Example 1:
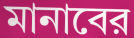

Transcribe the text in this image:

মানাবের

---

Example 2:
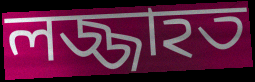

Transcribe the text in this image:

লজ্জাহত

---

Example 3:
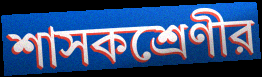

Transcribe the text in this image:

শাসকশ্রেণীর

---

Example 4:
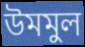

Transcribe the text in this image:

উমমুল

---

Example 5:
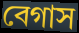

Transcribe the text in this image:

বেগাস